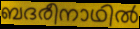
ബദരീനാഥിൽ